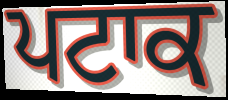
ਪਟਾਕ